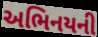
અભિનયની